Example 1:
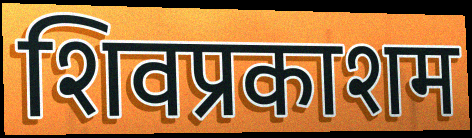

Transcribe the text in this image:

शिवप्रकाशम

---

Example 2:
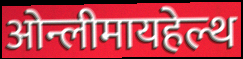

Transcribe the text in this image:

ओन्लीमायहेल्थ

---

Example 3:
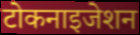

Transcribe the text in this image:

टोकनाइजेशन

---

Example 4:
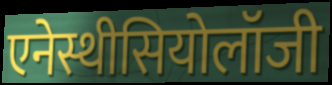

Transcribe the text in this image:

एनेस्थीसियोलॉजी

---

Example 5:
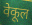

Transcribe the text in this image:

वेकूल